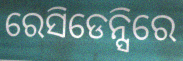
ରେସିଡେନ୍ସିରେ